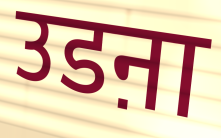
उडऩा